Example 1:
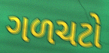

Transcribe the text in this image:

ગળચટો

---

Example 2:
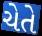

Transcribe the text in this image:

ચેતે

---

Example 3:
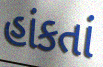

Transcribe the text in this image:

હાંકતાં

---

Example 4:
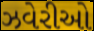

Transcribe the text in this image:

ઝવેરીઓ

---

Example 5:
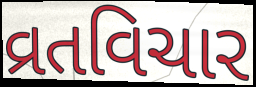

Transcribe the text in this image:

વ્રતવિચાર